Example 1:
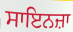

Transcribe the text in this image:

ਸਾਇਨਜ਼ਾ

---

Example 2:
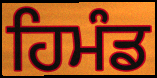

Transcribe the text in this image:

ਹਿਮੰਡ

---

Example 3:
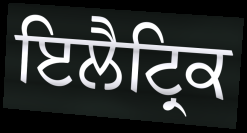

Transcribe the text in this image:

ਇਲੈਟ੍ਰਿਕ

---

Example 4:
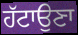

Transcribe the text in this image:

ਹੱਟਾਉਣਾ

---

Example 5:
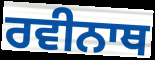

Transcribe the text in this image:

ਰਵੀਨਾਥ